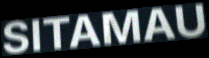
SITAMAU